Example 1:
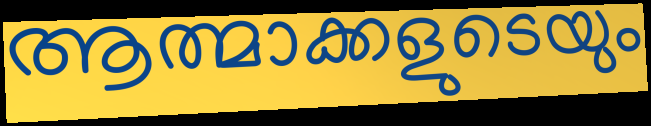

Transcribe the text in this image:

ആത്മാക്കളുടെയും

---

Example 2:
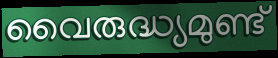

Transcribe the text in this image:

വൈരുദ്ധ്യമുണ്ട്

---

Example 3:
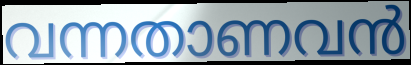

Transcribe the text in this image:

വന്നതാണവൻ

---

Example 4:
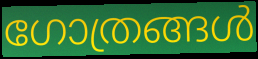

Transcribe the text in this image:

ഗോത്രങ്ങൾ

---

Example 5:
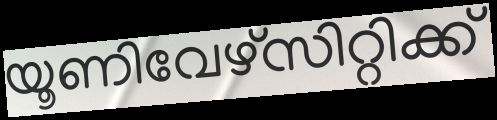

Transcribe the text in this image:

യൂണിവേഴ്സിറ്റിക്ക്